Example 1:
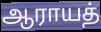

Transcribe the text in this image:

ஆராயத்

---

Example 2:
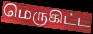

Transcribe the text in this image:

மெருகிட்ட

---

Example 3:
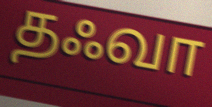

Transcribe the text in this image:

தஃவா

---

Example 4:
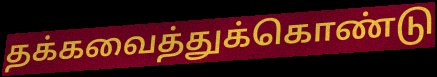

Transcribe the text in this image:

தக்கவைத்துக்கொண்டு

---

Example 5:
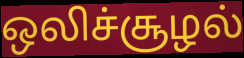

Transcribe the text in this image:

ஒலிச்சூழல்